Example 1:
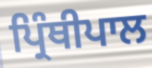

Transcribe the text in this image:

ਪ੍ਰਿੰਥੀਪਾਲ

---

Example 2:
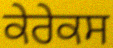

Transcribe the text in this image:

ਕੇਰੇਕਸ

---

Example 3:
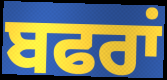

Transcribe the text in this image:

ਬਫਰਾਂ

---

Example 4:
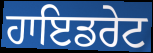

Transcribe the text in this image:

ਹਾਇਡਰੇਟ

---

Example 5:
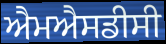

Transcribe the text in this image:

ਐਮਐਸਡੀਸੀ